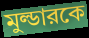
মুল্ডারকে